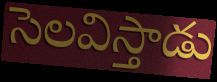
సెలవిస్తాడు